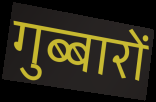
गुब्बारों